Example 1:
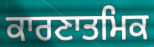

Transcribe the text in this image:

ਕਾਰਣਾਤਮਿਕ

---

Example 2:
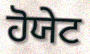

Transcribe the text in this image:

ਹੋਯੇਟ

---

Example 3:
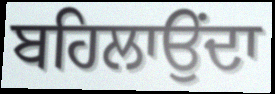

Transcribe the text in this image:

ਬਹਿਲਾਉਂਦਾ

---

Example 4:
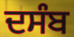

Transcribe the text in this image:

ਦਸੰਬ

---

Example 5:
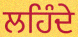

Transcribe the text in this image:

ਲਹਿੰਦੇ